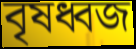
বৃষধ্বজ